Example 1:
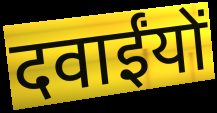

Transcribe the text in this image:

दवाईंयों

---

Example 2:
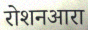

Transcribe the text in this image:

रोशनआरा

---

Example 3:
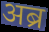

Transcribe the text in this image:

अब्र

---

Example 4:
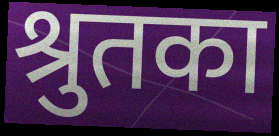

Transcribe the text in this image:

श्रुतका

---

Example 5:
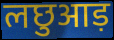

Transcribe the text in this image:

लछुआड़